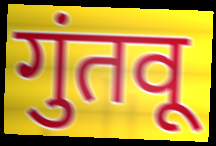
गुंतवू